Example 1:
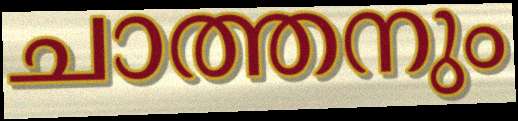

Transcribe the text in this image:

ചാത്തനും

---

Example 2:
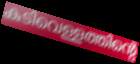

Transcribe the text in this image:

കുടിവെള്ളത്തിന്റെ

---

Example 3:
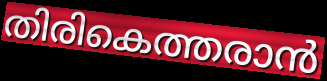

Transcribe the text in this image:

തിരികെത്തരാൻ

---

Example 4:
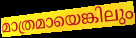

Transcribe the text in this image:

മാത്രമായെങ്കിലും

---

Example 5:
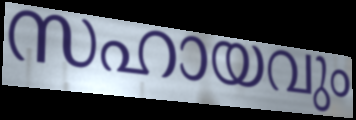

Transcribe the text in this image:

സഹായവും